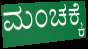
ಮಂಚಕ್ಕೆ